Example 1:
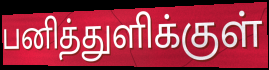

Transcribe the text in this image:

பனித்துளிக்குள்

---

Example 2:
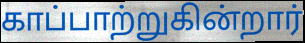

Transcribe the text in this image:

காப்பாற்றுகின்றார்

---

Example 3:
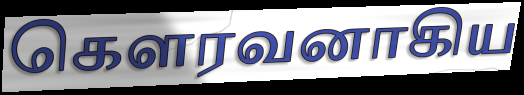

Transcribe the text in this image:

கௌரவனாகிய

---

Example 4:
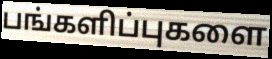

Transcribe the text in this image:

பங்களிப்புகளை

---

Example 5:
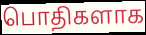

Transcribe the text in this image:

பொதிகளாக